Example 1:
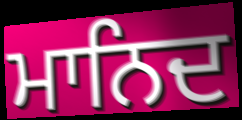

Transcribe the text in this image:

ਮਾਨਿਦ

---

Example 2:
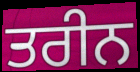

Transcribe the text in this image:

ਤਰੀਨ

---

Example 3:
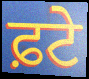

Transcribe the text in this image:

ਫ਼ਟੇ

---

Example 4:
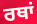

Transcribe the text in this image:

ਰਥਾਂ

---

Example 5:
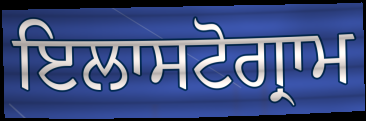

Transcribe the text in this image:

ਇਲਾਸਟੋਗ੍ਰਾਮ